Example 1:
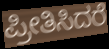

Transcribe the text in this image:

ಪ್ರೀತಿಸಿದರೆ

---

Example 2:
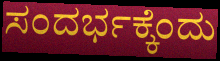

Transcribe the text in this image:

ಸಂದರ್ಭಕ್ಕೆಂದು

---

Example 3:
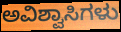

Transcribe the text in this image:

ಅವಿಶ್ವಾಸಿಗಳು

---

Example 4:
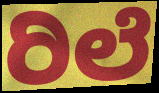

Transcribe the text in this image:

ರಿಲೆ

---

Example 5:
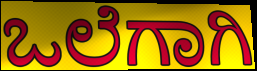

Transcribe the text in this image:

ಒಲೆಗಾಗಿ